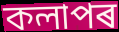
কলাপৰ